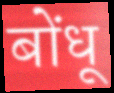
बोंधू